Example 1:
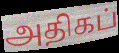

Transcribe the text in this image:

அதிகப்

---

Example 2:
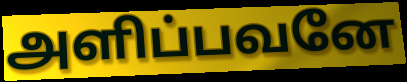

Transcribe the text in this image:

அளிப்பவனே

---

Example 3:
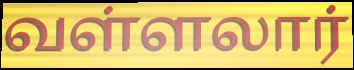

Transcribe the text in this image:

வள்ளலார்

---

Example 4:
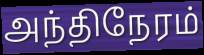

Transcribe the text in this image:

அந்திநேரம்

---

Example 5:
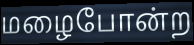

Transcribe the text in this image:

மழைபோன்ற